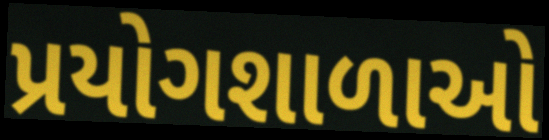
પ્રયોગશાળાઓ